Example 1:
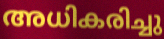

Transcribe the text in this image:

അധികരിച്ചു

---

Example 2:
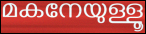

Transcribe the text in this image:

മകനേയുള്ളൂ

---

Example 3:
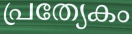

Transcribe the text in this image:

പ്രത്യേകം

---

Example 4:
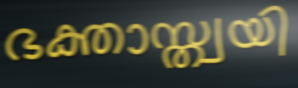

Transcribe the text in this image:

ഭക്താസ്ത്വയി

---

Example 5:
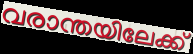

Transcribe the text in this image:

വരാന്തയിലേക്ക്